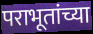
पराभूतांच्या